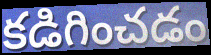
కడిగించడం